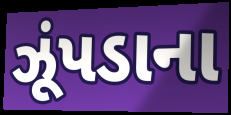
ઝૂંપડાના